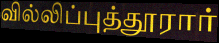
வில்லிப்புத்தூரார்